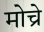
मोच्रे